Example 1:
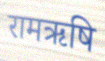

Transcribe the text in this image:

रामऋषि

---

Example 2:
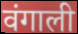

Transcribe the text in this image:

वंगाली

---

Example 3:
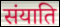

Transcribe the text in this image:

संयाति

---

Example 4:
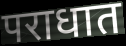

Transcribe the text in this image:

पराधात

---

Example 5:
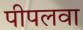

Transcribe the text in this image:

पीपलवा